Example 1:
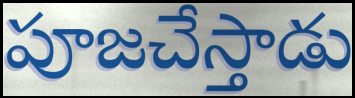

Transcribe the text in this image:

పూజచేస్తాడు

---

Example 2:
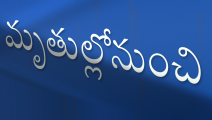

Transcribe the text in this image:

మృతుల్లోనుంచి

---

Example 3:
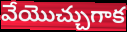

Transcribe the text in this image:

వేయొచ్చుగాక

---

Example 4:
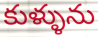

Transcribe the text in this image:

కుళ్ళును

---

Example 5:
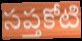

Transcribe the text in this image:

సప్తకోటి